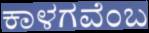
ಕಾಳಗವೆಂಬ